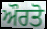
ਔਰਤੋ